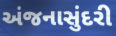
અંજનાસુંદરી